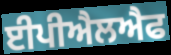
ਈਪੀਐਲਐਫ